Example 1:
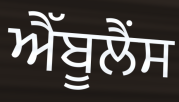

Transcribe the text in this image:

ਐੱਬੂਲੈਂਸ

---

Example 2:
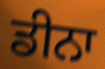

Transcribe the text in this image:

ਡੀਨਾ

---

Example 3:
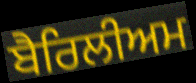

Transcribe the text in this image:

ਬੈਰਿਲੀਅਮ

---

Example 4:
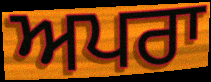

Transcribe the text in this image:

ਅਪਰਾ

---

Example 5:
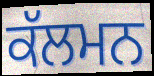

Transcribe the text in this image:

ਕੱਲਮਨ